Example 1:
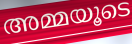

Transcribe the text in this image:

അമ്മയൂടെ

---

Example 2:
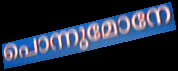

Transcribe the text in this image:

പൊന്നുമോനേ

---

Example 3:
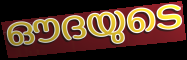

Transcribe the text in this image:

ഔദയുടെ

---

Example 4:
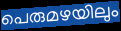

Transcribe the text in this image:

പെരുമഴയിലും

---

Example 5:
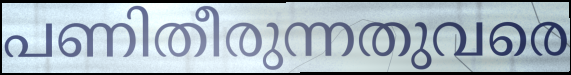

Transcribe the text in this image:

പണിതീരുന്നതുവരെ